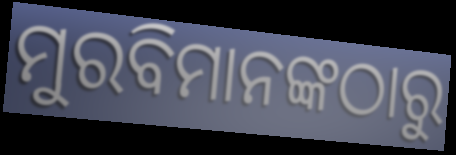
ମୁରବିମାନଙ୍କଠାରୁ